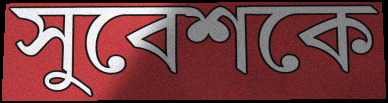
সুবেশকে